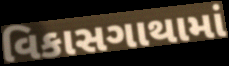
વિકાસગાથામાં